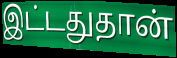
இட்டதுதான்